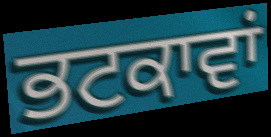
ਭਟਕਾਵਾਂ